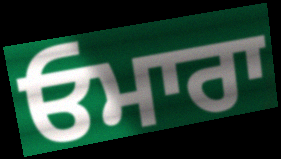
ਓਮਾਰਾ